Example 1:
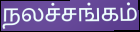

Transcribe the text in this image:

நலச்சங்கம்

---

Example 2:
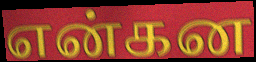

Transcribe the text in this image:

என்கன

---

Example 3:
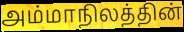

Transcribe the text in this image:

அம்மாநிலத்தின்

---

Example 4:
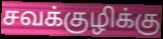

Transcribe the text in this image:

சவக்குழிக்கு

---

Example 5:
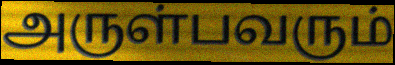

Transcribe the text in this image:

அருள்பவரும்